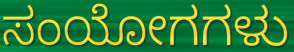
ಸಂಯೋಗಗಳು